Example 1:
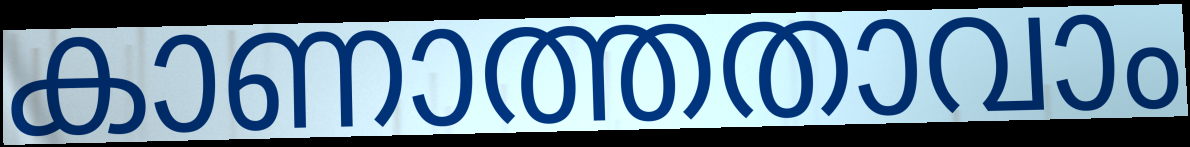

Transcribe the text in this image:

കാണാത്തതാവാം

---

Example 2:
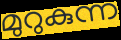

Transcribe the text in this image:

മുറുകുന്ന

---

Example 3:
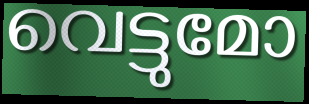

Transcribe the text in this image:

വെട്ടുമോ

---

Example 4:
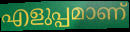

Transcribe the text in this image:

എളുപ്പമാണ്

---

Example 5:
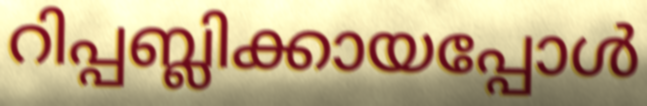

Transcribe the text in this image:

റിപ്പബ്ലിക്കായപ്പോൾ